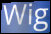
Wig